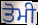
ਤੋਮੀ